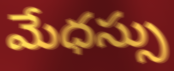
మేధస్సు